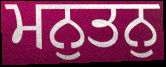
ਮਨੁਤਨੁ